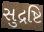
સુદ્રષ્ટિ